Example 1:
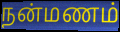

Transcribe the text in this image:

நன்மணம்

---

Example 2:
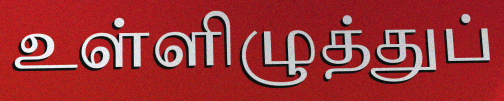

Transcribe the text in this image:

உள்ளிழுத்துப்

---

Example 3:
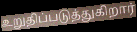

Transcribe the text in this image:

உறுதிப்படுத்துகிறார்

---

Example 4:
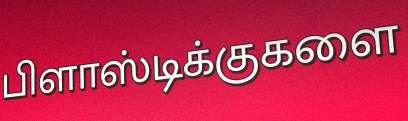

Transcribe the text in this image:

பிளாஸ்டிக்குகளை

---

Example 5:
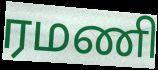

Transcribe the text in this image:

ரமணி